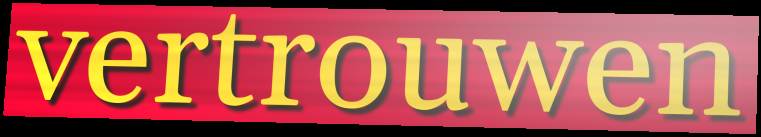
vertrouwen